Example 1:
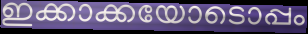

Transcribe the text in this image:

ഇക്കാക്കയോടൊപ്പം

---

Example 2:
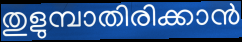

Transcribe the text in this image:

തുളുമ്പാതിരിക്കാൻ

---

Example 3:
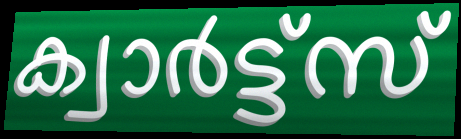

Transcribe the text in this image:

ക്വാർട്ട്സ്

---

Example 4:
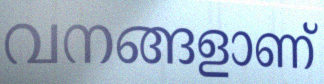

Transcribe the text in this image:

വനങ്ങളാണ്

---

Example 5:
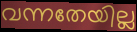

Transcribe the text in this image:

വന്നതേയില്ല